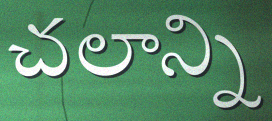
చలాన్ని